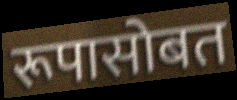
रूपासोबत